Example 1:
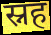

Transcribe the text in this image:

स्नह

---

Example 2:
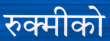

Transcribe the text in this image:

रुक्मीको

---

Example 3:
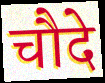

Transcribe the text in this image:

चौदे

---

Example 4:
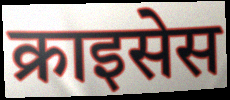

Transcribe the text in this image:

क्राइसेस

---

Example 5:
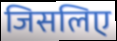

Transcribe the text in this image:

जिसलिए